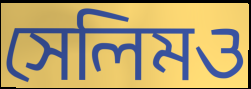
সেলিমও